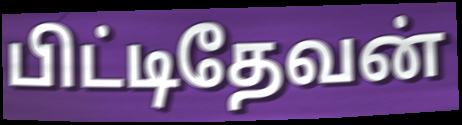
பிட்டிதேவன்